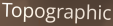
Topographic